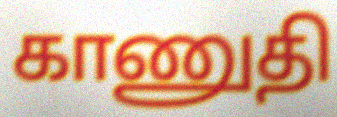
காணுதி